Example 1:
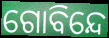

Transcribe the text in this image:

ଗୋବିନ୍ଦେ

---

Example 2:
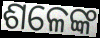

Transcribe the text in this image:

ଶଳେଙ୍କ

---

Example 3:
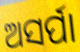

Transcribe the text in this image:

ଅସର୍ପା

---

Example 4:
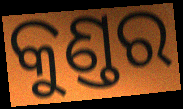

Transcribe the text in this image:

କୁଣ୍ଡର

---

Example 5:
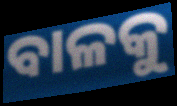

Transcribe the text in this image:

ବାଳକୁ